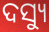
ଦସ୍ୟୁ